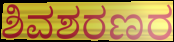
ಶಿವಶರಣರ